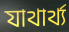
যাথার্থ্য